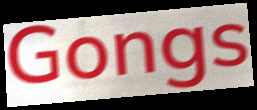
Gongs